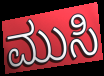
ಮುಸಿ